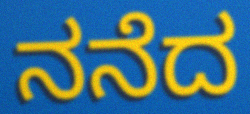
ನನೆದ